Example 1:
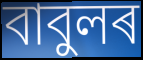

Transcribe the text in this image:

বাবুলৰ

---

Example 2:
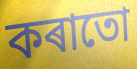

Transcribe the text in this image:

কৰাতো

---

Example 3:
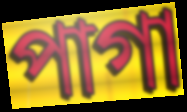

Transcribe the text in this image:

পাগা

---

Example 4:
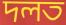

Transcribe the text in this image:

দলত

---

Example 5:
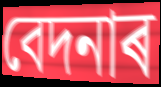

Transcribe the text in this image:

বেদনাৰ